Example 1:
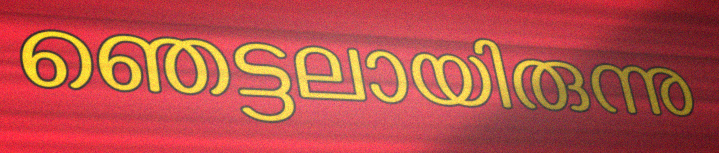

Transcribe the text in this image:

ഞെട്ടലായിരുന്നു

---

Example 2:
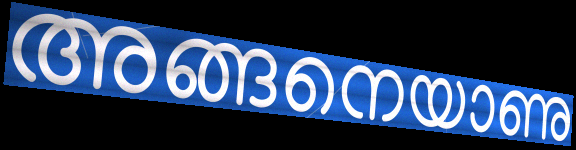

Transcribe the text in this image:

അങ്ങനെയാണു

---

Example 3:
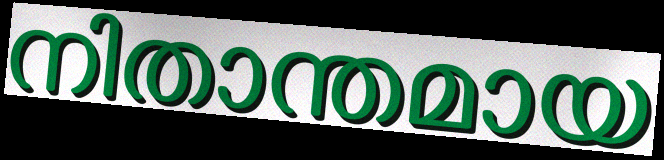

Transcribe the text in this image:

നിതാന്തമായ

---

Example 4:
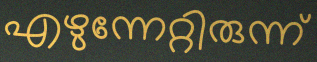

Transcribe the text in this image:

എഴുന്നേറ്റിരുന്ന്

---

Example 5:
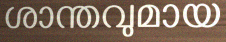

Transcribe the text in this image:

ശാന്തവുമായ